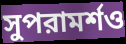
সুপরামর্শও